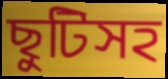
ছুটিসহ